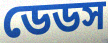
ডেডস